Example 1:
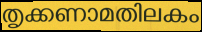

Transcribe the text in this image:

തൃക്കണാമതിലകം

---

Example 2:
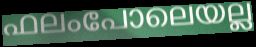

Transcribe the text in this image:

ഫലംപോലെയല്ല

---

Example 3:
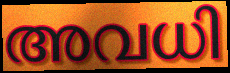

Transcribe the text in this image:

അവധി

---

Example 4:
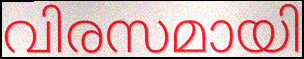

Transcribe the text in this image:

വിരസമായി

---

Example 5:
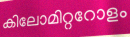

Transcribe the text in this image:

കിലോമിറ്ററോളം